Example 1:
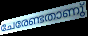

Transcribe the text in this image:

ചേരേണ്ടതാണു്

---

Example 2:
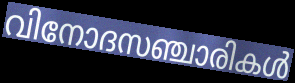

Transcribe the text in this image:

വിനോദസഞ്ചാരികൾ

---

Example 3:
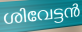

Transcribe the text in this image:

ശിവേട്ടൻ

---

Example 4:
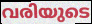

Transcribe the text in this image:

വരിയുടെ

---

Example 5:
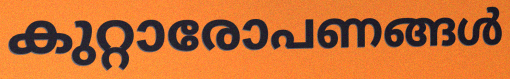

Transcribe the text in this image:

കുറ്റാരോപണങ്ങൾ